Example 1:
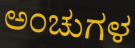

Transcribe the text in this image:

ಅಂಚುಗಳ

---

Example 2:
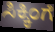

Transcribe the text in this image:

ಸಿಕ್ಕಿಂಗೆ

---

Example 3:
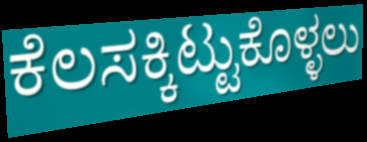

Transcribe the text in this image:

ಕೆಲಸಕ್ಕಿಟ್ಟುಕೊಳ್ಳಲು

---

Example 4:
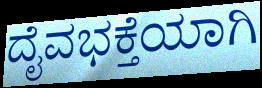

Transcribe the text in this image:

ದೈವಭಕ್ತೆಯಾಗಿ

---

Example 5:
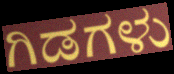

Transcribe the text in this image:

ಗಿಡಗಳು